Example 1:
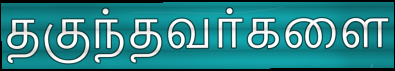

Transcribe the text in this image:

தகுந்தவர்களை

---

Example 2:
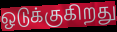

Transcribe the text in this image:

ஒடுக்குகிறது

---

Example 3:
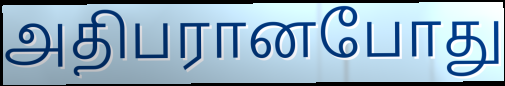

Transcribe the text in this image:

அதிபரானபோது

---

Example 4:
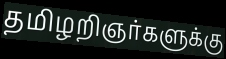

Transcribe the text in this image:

தமிழறிஞர்களுக்கு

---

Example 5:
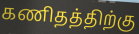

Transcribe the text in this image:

கணிதத்திற்கு